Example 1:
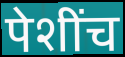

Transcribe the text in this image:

पेशींच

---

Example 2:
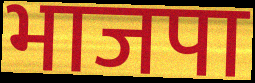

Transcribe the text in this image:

भाजपा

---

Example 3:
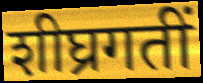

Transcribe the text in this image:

शीघ्रगतीं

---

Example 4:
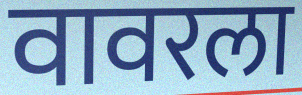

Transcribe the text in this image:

वावरला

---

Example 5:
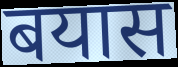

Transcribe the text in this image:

बयास